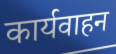
कार्यवाहन